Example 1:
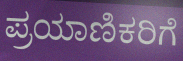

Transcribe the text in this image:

ಪ್ರಯಾಣಿಕರಿಗೆ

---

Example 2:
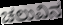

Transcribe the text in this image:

ಚಲುವಿನ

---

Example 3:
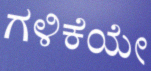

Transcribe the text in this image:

ಗಳಿಕೆಯೇ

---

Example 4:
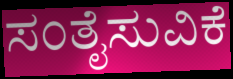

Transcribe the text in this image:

ಸಂತೈಸುವಿಕೆ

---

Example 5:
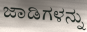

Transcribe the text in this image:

ಜಾಡಿಗಳನ್ನು